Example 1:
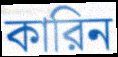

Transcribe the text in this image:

কারিন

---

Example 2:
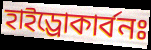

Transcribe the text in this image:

হাইড্রোকার্বনঃ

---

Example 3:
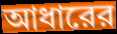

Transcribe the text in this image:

আধারের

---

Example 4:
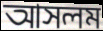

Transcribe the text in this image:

আসলম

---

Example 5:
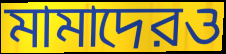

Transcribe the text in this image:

মামাদেরও